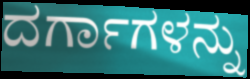
ದರ್ಗಾಗಳನ್ನು